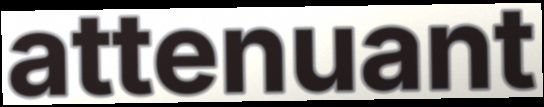
attenuant